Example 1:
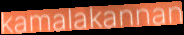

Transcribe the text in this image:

kamalakannan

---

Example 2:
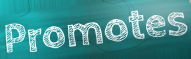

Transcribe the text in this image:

Promotes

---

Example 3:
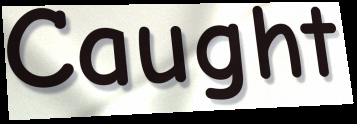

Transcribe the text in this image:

Caught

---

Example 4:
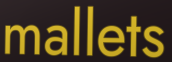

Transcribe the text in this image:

mallets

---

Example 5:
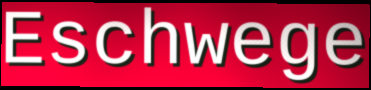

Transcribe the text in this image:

Eschwege